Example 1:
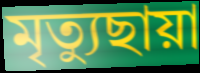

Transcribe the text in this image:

মৃত্যুছায়া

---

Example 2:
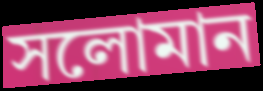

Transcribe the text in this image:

সলোমান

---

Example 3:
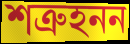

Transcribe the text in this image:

শত্রুহনন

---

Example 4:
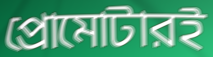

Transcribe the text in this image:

প্রোমোটারই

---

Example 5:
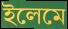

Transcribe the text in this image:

ইলেমে